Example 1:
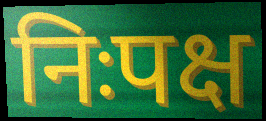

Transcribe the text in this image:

निःपक्ष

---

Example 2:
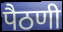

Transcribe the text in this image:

पैठणी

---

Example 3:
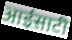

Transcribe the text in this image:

आईसाटी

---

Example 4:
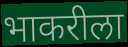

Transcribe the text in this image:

भाकरीला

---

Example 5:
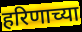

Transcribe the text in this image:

हरिणाच्या